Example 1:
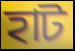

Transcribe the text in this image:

হাট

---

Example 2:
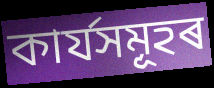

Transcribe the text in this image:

কাৰ্যসমূহৰ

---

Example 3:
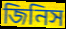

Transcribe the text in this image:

জিনিস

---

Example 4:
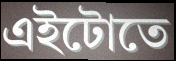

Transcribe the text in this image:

এইটোতে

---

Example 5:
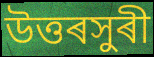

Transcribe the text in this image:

উত্তৰসুৰী